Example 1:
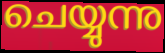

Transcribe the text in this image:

ചെയ്യുന്നു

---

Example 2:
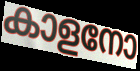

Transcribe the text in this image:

കാളനോ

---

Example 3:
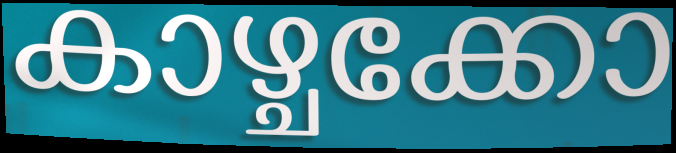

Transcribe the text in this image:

കാഴ്ചക്കോ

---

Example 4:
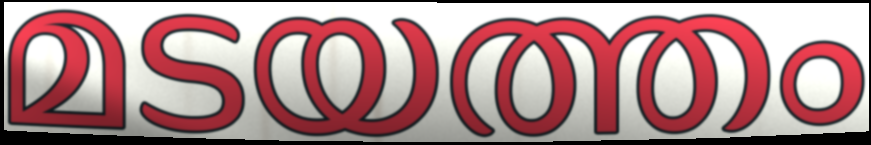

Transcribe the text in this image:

മടയത്തം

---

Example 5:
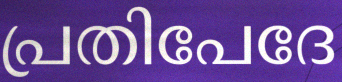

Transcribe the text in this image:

പ്രതിപേദേ